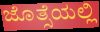
ಜೊತ್ಸೆಯಲ್ಲಿ